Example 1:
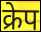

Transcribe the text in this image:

क्रेप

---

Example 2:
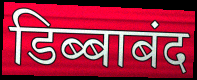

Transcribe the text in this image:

डिब्बाबंद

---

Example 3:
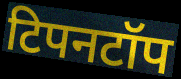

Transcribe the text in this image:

टिपनटॉप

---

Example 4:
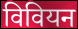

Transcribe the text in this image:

विवियन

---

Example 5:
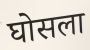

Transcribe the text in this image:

घोसला